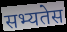
सभ्यतेस